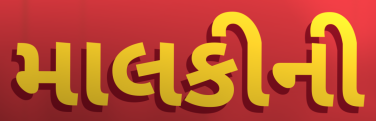
માલકીની